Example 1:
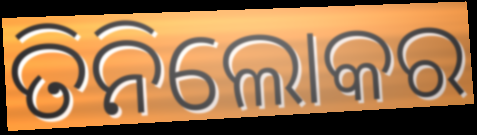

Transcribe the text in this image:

ତିନିଲୋକର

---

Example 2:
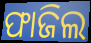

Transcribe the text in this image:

ଫାଜିଲ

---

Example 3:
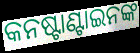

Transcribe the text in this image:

କନଷ୍ଟାଣ୍ଟାଇନଙ୍କ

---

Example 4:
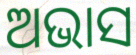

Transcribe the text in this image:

ଅଭାସ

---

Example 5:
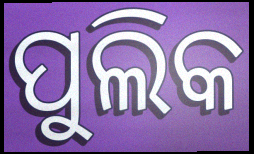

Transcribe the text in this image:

ପୁଲିକ